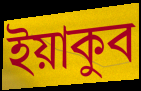
ইয়াকুব